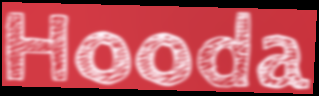
Hooda